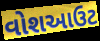
વોશઆઉટ